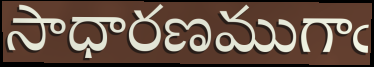
సాధారణముగాఁ